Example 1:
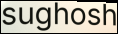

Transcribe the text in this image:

sughosh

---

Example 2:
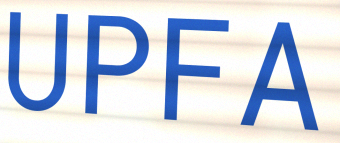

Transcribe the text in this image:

UPFA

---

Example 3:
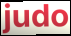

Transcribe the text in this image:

judo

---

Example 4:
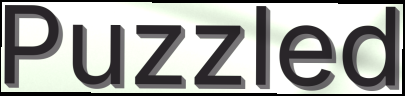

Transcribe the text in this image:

Puzzled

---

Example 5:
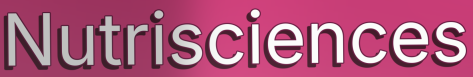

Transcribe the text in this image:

Nutrisciences